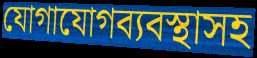
যোগাযোগব্যবস্থাসহ